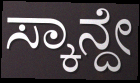
ಸ್ಕಾನ್ದೇ